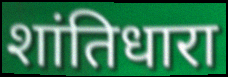
शांतिधारा